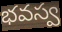
భవస్వ